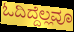
ಓದಿದ್ದೆಲ್ಲವೂ